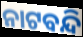
ନାଟବନ୍ଦି